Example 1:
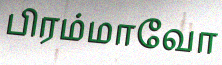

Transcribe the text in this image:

பிரம்மாவோ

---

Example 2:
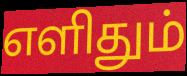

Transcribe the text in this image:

எளிதும்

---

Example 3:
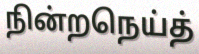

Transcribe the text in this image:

நின்றநெய்த்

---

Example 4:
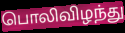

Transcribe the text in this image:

பொலிவிழந்து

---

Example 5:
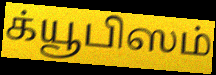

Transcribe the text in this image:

க்யூபிஸம்